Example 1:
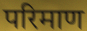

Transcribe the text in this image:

परिमाण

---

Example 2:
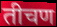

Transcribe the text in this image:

तीचण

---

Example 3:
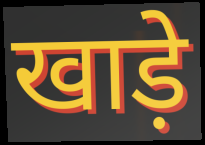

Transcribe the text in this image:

खाड़े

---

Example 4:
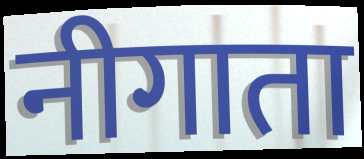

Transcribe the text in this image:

नीगाता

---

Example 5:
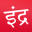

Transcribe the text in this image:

इंद्र